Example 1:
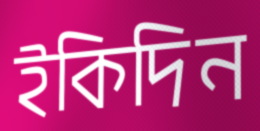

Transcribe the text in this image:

ইকিদিন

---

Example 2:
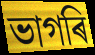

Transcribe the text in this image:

ভাগৰি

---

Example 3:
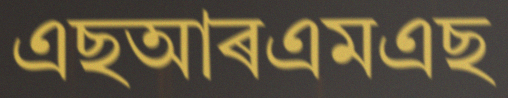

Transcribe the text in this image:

এছআৰএমএছ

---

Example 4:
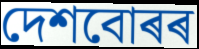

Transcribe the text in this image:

দেশবোৰৰ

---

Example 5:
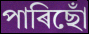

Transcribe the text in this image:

পাৰিছোঁ